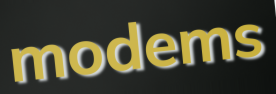
modems